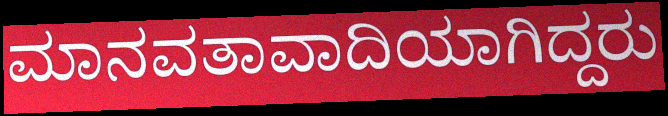
ಮಾನವತಾವಾದಿಯಾಗಿದ್ದರು